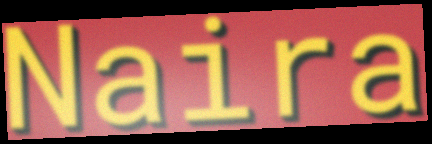
Naira